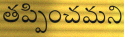
తప్పించమని